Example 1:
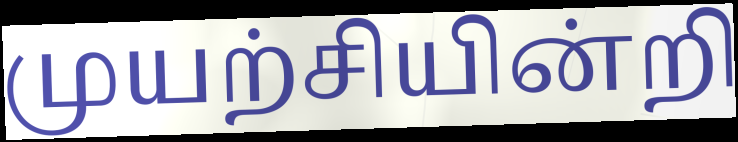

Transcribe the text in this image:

முயற்சியின்றி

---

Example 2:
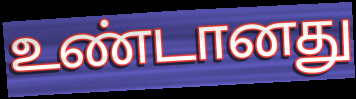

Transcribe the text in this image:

உண்டானது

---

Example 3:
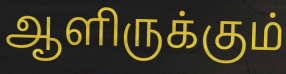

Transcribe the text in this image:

ஆளிருக்கும்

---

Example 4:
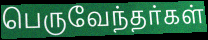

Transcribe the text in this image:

பெருவேந்தர்கள்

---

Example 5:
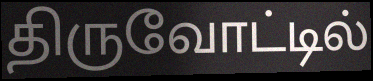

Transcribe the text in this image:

திருவோட்டில்